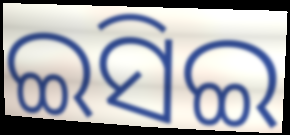
ଇସିଇ